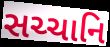
સચ્ચાનિ